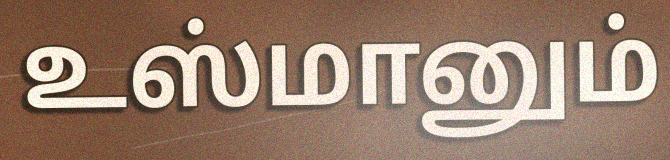
உஸ்மானும்